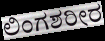
ಲಿಂಗಶರೀರ